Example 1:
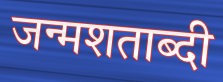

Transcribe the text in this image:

जन्मशताब्दी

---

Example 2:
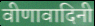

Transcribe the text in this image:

वीणावादिनी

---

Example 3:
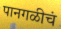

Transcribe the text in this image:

पानगळीचं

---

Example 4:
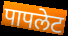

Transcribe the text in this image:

पापलेट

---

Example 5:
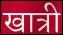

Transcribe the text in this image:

खात्री